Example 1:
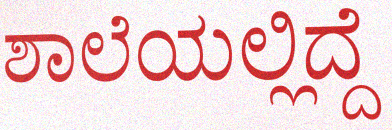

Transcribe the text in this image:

ಶಾಲೆಯಲ್ಲಿದ್ದೆ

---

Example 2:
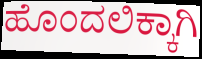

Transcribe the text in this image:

ಹೊಂದಲಿಕ್ಕಾಗಿ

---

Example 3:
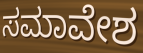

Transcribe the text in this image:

ಸಮಾವೇಶ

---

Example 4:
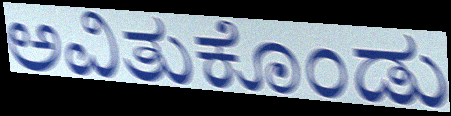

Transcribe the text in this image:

ಅವಿತುಕೊಂಡು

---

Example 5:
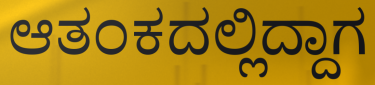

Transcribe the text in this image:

ಆತಂಕದಲ್ಲಿದ್ದಾಗ